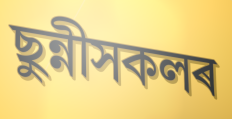
ছুন্নীসকলৰ